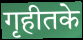
गृहीतके